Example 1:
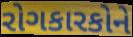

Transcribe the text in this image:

રોગકારકોને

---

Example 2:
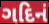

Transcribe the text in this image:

ગદિનં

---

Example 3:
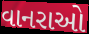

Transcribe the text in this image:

વાનરાઓ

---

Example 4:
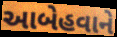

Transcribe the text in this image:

આબેહવાને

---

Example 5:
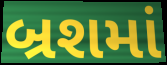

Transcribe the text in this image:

બ્રશમાં